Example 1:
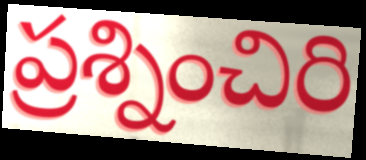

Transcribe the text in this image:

ప్రశ్నించిరి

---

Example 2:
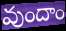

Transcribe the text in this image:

వుందాం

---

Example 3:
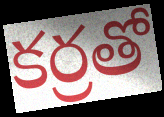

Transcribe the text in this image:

కర్రతో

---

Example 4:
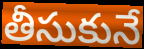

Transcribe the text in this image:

తీసుకునే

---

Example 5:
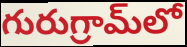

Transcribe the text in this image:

గురుగ్రామ్‌లో